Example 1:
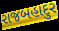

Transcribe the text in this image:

રાજબહાદુર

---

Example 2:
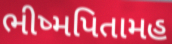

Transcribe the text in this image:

ભીષ્મપિતામહ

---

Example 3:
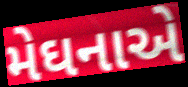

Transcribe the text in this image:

મેઘનાએ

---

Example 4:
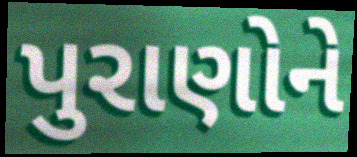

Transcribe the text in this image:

પુરાણોને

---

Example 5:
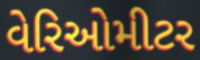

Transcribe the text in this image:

વેરિઓમીટર